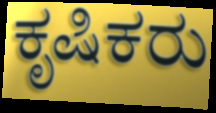
ಕೃಷಿಕರು